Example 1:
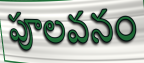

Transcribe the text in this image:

పూలవనం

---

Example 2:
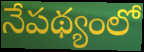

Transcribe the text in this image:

నేపథ్యంలో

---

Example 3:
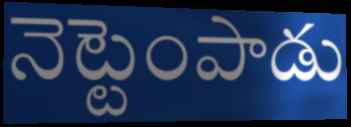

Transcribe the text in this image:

నెట్టెంపాడు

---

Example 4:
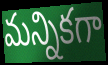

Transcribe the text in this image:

మన్నికగా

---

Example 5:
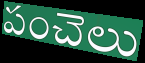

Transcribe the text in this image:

పంచెలు